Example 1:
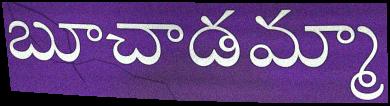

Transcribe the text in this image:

బూచాడమ్మా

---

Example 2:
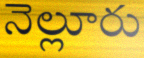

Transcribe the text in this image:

నెల్లూరు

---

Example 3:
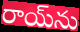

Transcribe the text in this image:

రాయ్‌ను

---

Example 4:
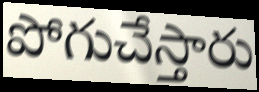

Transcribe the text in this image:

పోగుచేస్తారు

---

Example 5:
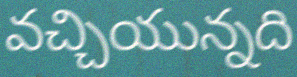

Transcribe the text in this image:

వచ్చియున్నది